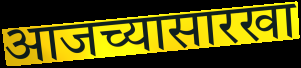
आजच्यासारखा